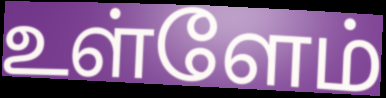
உள்ளேம்